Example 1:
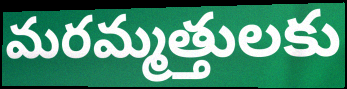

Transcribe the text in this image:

మరమ్మత్తులకు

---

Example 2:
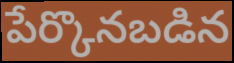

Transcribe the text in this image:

పేర్కొనబడిన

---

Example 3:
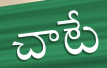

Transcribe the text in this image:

చాటే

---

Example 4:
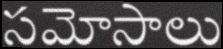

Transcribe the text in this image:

సమోసాలు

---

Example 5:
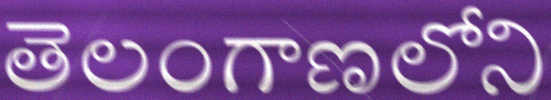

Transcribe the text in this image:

తెలంగాణలోని